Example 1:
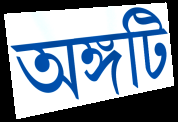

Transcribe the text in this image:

অঙ্গটি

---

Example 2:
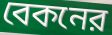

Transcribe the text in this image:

বেকনের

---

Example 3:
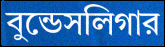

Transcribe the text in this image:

বুন্ডেসলিগার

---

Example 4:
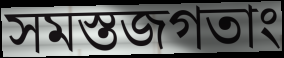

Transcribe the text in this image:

সমস্তজগতাং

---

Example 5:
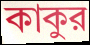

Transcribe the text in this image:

কাকুর